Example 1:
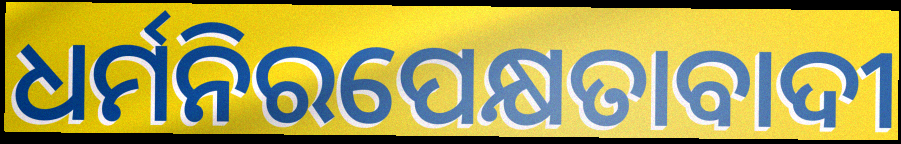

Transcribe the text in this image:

ଧର୍ମନିରପେକ୍ଷତାବାଦୀ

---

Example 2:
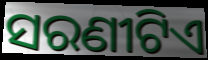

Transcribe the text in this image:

ସରଣୀଟିଏ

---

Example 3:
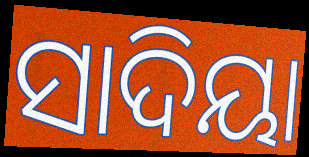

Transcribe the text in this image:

ସାଦିୟା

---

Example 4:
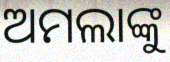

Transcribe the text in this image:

ଅମଲାଙ୍କୁ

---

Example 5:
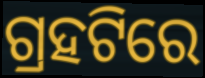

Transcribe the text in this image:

ଗ୍ରହଟିରେ